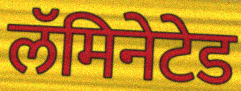
लॅमिनेटेड